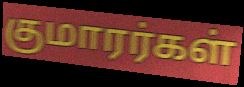
குமாரர்கள்